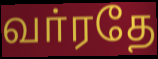
வர்ரதே